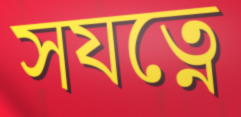
সযত্নে